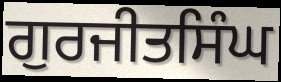
ਗੁਰਜੀਤਸਿੰਘ